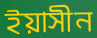
ইয়াসীন